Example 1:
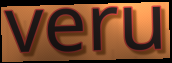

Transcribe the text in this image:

veru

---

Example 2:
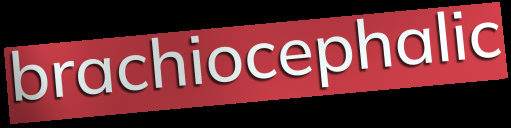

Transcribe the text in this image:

brachiocephalic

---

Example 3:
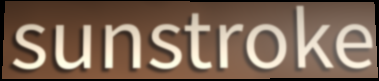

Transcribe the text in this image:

sunstroke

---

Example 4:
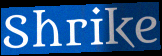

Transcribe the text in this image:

Shrike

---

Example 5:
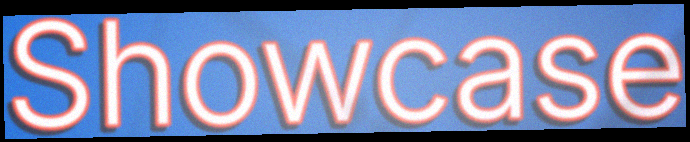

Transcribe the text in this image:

Showcase